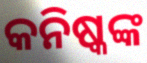
କନିଷ୍କଙ୍କ